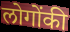
लोगोंकी